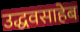
उद्धवसाहेब